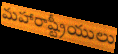
మహారాష్ట్రీయులు